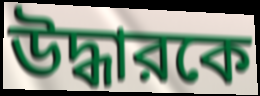
উদ্ধারকে